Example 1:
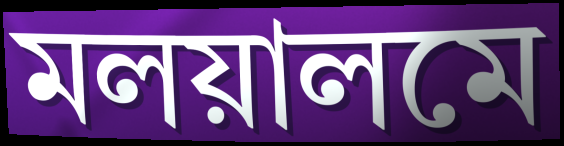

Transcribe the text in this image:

মলয়ালমে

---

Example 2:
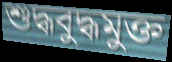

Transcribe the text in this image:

শুদ্ধবুদ্ধমুক্ত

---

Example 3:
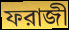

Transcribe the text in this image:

ফরাজী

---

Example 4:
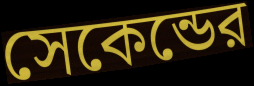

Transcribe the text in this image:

সেকেন্ডের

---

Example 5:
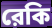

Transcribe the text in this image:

রেকি